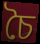
চৈ